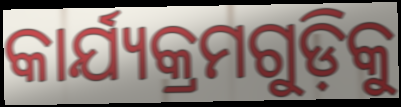
କାର୍ଯ୍ୟକ୍ରମଗୁଡ଼ିକୁ